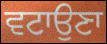
ਵਟਾਉਣਾ